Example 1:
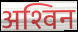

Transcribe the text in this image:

अश्विन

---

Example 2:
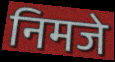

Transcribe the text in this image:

निमजे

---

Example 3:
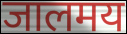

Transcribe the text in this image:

जालमय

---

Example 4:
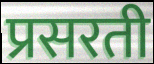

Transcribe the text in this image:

प्रसरती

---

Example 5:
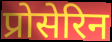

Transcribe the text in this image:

प्रोसेरिन